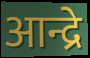
आन्द्रे